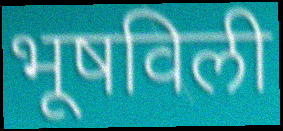
भूषविली